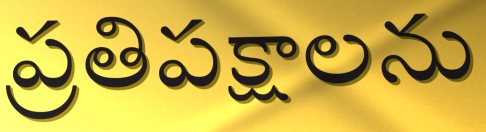
ప్రతిపక్షాలను